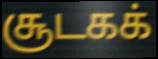
சூடகக்